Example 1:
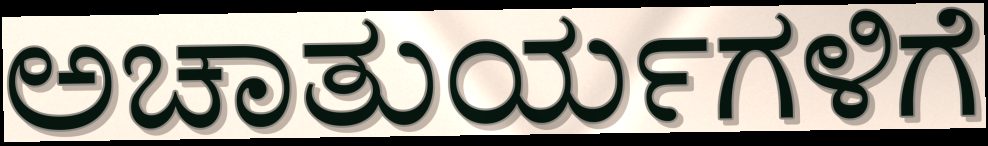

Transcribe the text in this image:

ಅಚಾತುರ್ಯಗಳಿಗೆ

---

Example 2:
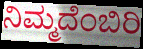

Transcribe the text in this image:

ನಿಮ್ಮದೆಂಬಿರಿ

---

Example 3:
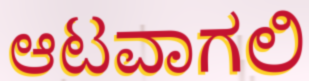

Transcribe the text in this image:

ಆಟವಾಗಲಿ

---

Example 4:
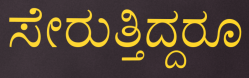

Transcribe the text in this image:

ಸೇರುತ್ತಿದ್ದರೂ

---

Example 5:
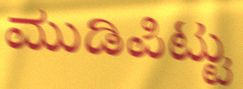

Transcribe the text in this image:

ಮುಡಿಪಿಟ್ಟು